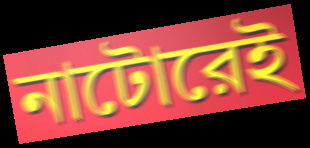
নাটোরেই